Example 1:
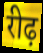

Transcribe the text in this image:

रीढ़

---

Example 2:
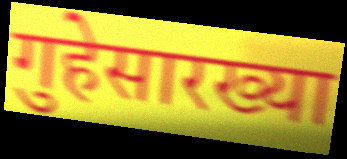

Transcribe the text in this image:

गुहेसारख्या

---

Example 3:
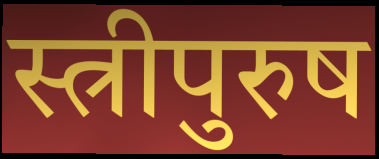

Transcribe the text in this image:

स्त्रीपुरुष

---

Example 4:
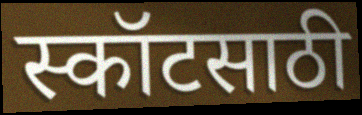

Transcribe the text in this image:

स्कॉटसाठी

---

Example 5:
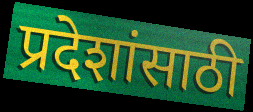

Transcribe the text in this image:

प्रदेशांसाठी